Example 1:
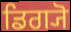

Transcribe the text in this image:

ਡਿਗ੍ਯੋ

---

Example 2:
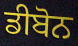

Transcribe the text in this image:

ਡੀਬੋਨ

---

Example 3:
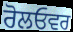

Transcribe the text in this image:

ਰੋਲਓਵਰ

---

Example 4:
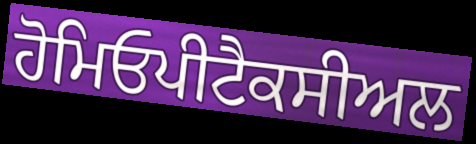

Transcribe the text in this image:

ਹੋਮਿਓਪੀਟੈਕਸੀਅਲ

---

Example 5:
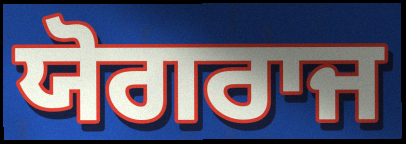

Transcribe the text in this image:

ਯੋਗਰਾਜ